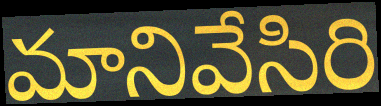
మానివేసిరి